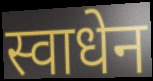
स्वाधेन